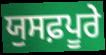
ਯੁਸਫ਼ਪੂਰੇ